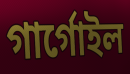
গাৰ্গোইল